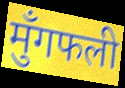
मुँगफली